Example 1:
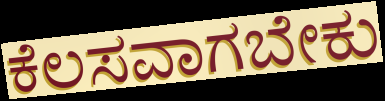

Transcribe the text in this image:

ಕೆಲಸವಾಗಬೇಕು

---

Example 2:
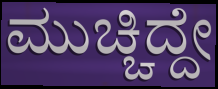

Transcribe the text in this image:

ಮುಚ್ಚಿದ್ದೇ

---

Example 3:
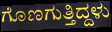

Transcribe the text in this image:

ಗೊಣಗುತ್ತಿದ್ದಳು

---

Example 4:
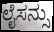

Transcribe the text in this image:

ಲೈಸನ್ಸು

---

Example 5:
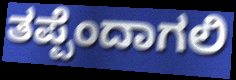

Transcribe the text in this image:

ತಪ್ಪೆಂದಾಗಲಿ